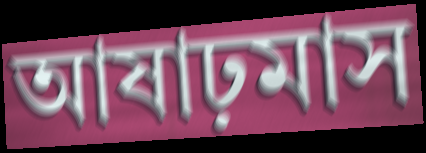
আষাঢ়মাস